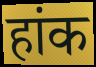
हांक